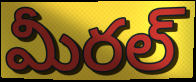
మీరల్